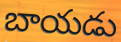
బాయడు